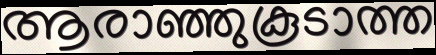
ആരാഞ്ഞുകൂടാത്ത